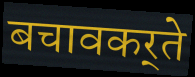
बचावकर्ते